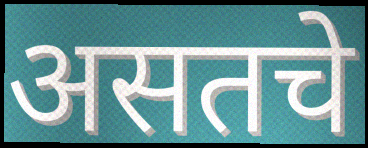
असतचे